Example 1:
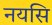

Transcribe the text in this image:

नयसि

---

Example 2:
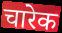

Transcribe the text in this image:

चारेक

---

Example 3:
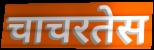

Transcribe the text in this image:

चाचरतेस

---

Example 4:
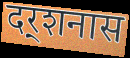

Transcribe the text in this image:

दर्शनास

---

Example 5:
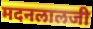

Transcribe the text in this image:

मदनलालजी